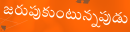
జరుపుకుంటున్నపుడు